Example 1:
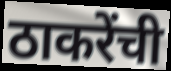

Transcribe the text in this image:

ठाकरेंची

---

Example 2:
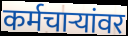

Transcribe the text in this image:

कर्मचाऱ्यांवर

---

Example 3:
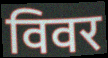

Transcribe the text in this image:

विवर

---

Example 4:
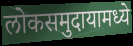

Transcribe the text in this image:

लोकसमुदायामध्ये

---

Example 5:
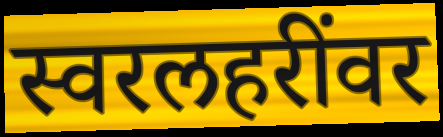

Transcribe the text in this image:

स्वरलहरींवर